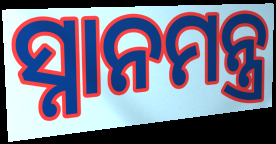
ସ୍ନାନମନ୍ତ୍ର